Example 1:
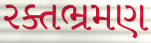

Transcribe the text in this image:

રક્તભ્રમણ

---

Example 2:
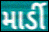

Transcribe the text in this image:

માર્ડી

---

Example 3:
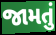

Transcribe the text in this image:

જામતું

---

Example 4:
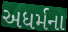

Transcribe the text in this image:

અધર્મના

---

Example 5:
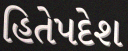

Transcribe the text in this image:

હિતેપદેશ